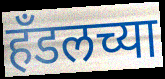
हँडलच्या